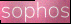
sophos